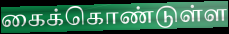
கைக்கொண்டுள்ள